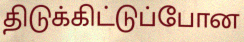
திடுக்கிட்டுப்போன